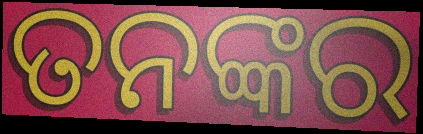
ତନଙ୍କର